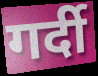
गर्दी